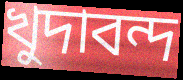
খুদাবন্দ